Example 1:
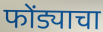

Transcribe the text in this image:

फोंड्याचा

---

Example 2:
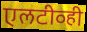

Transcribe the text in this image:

एलटीव्ही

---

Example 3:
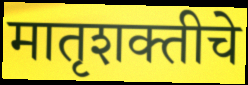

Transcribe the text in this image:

मातृशक्तीचे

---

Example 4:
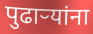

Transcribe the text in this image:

पुढाऱ्यांना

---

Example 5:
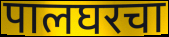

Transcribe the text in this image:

पालघरचा